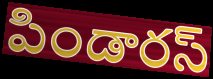
పిండారస్